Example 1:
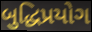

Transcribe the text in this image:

બુદ્ધિપ્રયોગ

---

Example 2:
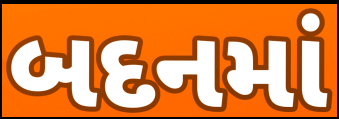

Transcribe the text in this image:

બદનમાં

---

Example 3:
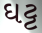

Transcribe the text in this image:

ઘટ્ટ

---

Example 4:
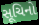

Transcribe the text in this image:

સૂચિનો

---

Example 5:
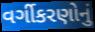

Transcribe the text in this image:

વર્ગીકરણોનું